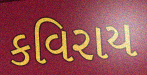
કવિરાય